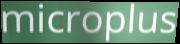
microplus